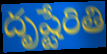
దృష్టేరితి